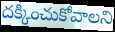
దక్కించుకోవాలని